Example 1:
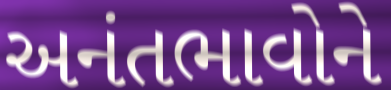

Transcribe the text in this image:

અનંતભાવોને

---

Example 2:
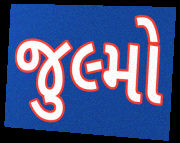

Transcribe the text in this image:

જુલ્મો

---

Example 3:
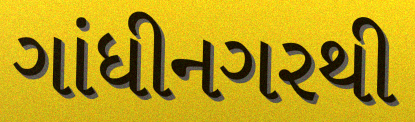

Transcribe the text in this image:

ગાંધીનગરથી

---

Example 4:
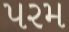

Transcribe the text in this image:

પરમ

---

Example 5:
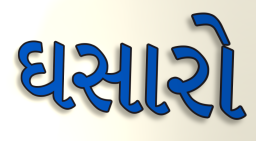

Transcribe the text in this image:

ઘસારો